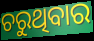
ଚରୁଥିବାର